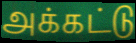
அக்கட்டு